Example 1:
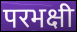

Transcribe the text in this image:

परभक्षी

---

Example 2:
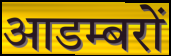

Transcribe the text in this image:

आडम्बरों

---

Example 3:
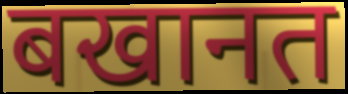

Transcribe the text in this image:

बखानत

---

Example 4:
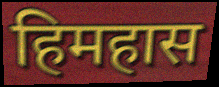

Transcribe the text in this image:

हिमहास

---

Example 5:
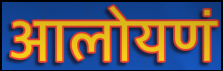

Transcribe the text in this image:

आलोयणं